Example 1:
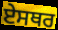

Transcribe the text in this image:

ਏਸਥਰ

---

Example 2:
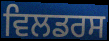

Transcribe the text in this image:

ਵਿਲਡਰਸ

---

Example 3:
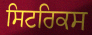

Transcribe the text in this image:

ਸਿਟਰਿਕਸ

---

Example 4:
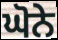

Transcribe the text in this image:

ਘੋਨੇ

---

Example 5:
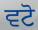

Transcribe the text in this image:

ਵਟੋ